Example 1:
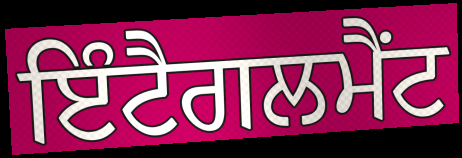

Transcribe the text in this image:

ਇੰਟੈਗਲਮੈਂਟ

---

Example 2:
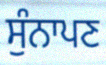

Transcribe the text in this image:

ਸੁੰਨਾਪਣ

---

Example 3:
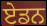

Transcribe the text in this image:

ਏਡਨ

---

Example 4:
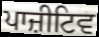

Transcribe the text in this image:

ਪਾਜ਼ੀਟਿਵ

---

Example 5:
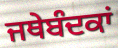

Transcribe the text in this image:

ਜਥੇਬੰਦਕਾਂ